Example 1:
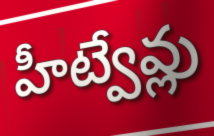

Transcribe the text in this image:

హీట్వేవ్లు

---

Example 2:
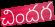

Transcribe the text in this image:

చిందగ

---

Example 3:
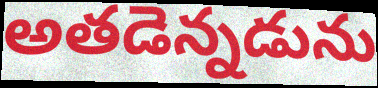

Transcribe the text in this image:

అతడెన్నడును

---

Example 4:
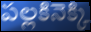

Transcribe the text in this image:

పల్లకినెక్కి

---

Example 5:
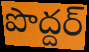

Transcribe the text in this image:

పొద్దర్